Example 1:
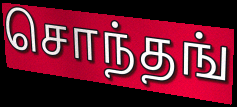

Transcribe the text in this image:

சொந்தங்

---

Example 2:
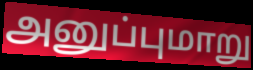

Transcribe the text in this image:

அனுப்புமாறு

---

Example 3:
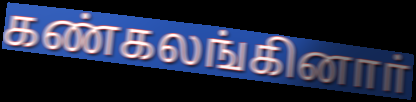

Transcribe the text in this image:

கண்கலங்கினார்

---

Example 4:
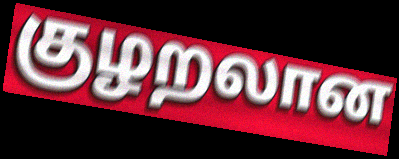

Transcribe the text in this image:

குழறலான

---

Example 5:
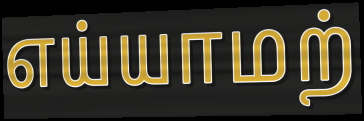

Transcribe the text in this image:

எய்யாமற்